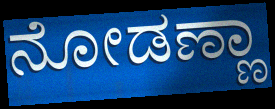
ನೋಡಣ್ಣಾ